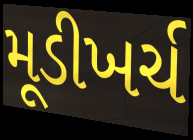
મૂડીખર્ચ